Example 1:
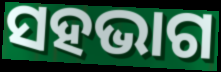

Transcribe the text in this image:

ସହଭାଗ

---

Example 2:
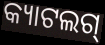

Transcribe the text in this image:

କ୍ୟାଟଲଗ୍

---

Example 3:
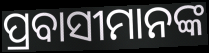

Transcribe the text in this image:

ପ୍ରବାସୀମାନଙ୍କ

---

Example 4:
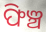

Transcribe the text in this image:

ଫିଞ୍ଚ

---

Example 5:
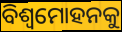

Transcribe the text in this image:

ବିଶ୍ଵମୋହନକୁ